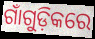
ଗାଁଗୁଡ଼ିକରେ